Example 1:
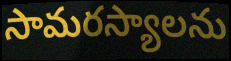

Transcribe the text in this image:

సామరస్యాలను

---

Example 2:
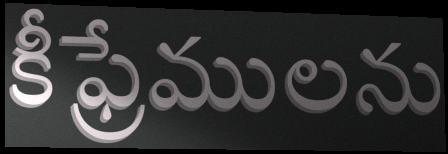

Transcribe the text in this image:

కీఫ్రేములను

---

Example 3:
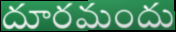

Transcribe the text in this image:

దూరమందు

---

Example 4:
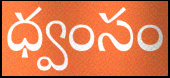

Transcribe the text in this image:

ధ్వంసం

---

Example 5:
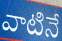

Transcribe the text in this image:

వాటినే